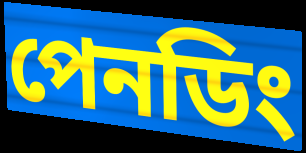
পেনডিং